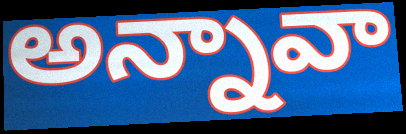
అన్నావా